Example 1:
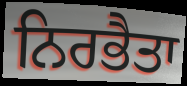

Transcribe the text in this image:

ਨਿਰਭੈਤਾ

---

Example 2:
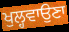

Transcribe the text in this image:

ਖੁਲ੍ਹਵਾਉਣਾ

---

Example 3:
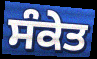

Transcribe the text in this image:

ਸੰਕੇਤ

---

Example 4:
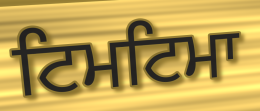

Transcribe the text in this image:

ਟਿਮਟਿਮਾ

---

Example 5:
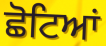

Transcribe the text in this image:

ਛੋਟਿਆਂ